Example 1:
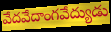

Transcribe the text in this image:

వేదవేదాంగవేద్యుడు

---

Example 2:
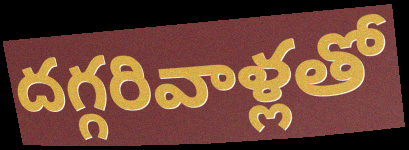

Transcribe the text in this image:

దగ్గరివాళ్లతో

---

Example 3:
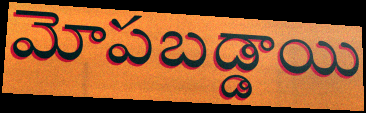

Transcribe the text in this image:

మోపబడ్డాయి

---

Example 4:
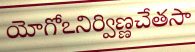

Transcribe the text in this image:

యోగోఽనిర్విణ్ణచేతసా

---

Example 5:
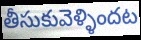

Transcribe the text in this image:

తీసుకువెళ్ళిందట